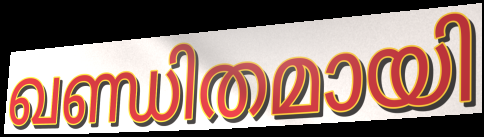
ഖണ്ഡിതമായി